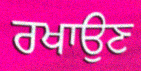
ਰਖਾਉਣ